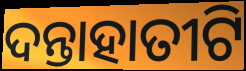
ଦନ୍ତାହାତୀଟି